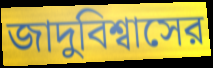
জাদুবিশ্বাসের